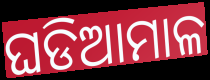
ଘଡିଆମାଳ